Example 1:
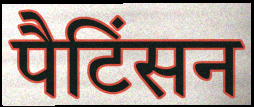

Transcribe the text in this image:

पैटिंसन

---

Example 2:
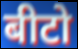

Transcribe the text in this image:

बीटो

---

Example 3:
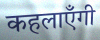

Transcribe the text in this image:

कहलाएँगी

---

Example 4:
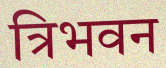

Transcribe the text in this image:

त्रिभवन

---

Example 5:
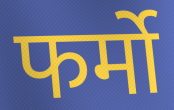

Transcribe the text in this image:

फर्मो